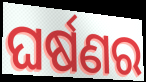
ଘର୍ଷଣର